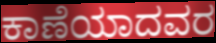
ಕಾಣೆಯಾದವರ